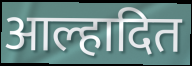
आल्हादित